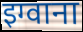
इग्वाना